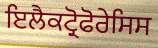
ਇਲੈਕਟ੍ਰੋਫੋਰੇਸਿਸ